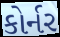
કોર્નર